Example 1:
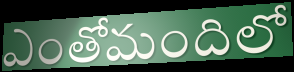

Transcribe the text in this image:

ఎంతోమందిలో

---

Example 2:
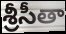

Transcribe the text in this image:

శ్రీసీతా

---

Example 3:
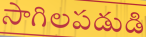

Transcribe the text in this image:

సాగిలపడుడి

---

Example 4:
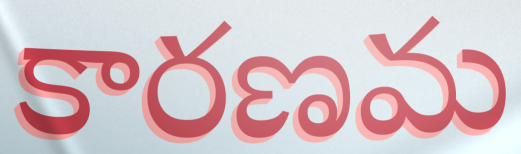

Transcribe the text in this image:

కారణమ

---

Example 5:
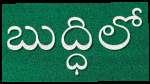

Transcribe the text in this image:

బుద్ధిలో